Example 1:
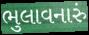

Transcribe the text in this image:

ભુલાવનારું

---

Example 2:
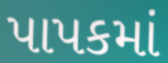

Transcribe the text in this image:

પાપકમાં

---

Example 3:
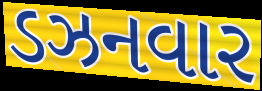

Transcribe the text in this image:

ડઝનવાર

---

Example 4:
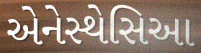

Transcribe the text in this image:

એનેસ્થેસિઆ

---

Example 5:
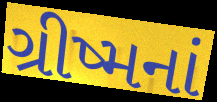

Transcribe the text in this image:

ગ્રીષ્મનાં